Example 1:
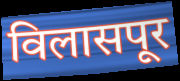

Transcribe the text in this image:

विलासपूर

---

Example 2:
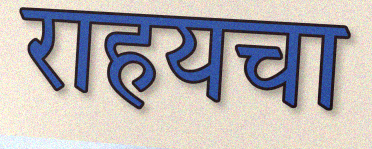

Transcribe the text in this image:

राहयचा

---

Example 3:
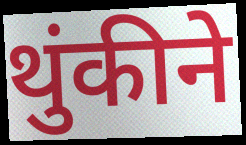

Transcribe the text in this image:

थुंकीने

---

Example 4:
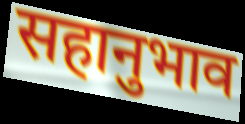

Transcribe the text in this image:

सहानुभाव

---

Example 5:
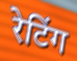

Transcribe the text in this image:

रेटिंग